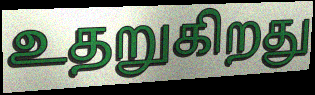
உதறுகிறது